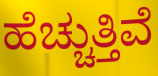
ಹೆಚ್ಚುತ್ತಿವೆ